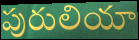
పురులియా